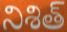
నిశిత్